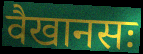
वैखानसः